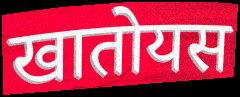
खातोयस